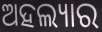
ଅହଲ୍ୟାର